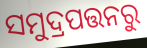
ସମୁଦ୍ରପତ୍ତନରୁ